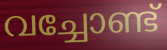
വച്ചോണ്ട്